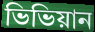
ভিভিয়ান